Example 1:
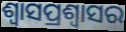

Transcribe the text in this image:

ଶ୍ଵାସପ୍ରଶ୍ଵାସର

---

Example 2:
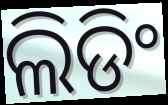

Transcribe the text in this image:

ଲିଡିଂ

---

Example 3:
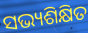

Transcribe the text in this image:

ସଭ୍ୟଶିକ୍ଷିତ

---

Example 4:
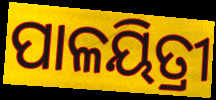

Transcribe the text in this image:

ପାଳୟିତ୍ରୀ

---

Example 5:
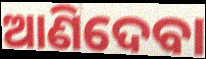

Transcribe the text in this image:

ଆଣିଦେବା